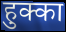
हुक्का